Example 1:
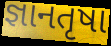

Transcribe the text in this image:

જ્ઞાનતૃષા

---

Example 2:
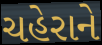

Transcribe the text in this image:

ચહેરાને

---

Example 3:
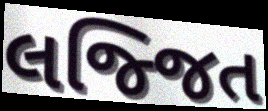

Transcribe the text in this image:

લજ્જિત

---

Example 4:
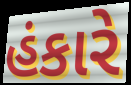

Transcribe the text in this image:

હંકારે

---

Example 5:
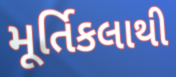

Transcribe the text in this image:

મૂર્તિકલાથી